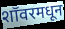
शॉवरमधून